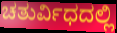
ಚತುರ್ವಿಧದಲ್ಲಿ